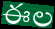
ఈల